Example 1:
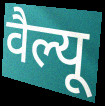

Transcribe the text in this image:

वैल्यू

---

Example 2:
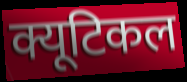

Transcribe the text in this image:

क्यूटिकल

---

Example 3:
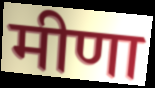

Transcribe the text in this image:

मीणा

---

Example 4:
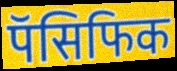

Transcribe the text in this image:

पॅसिफिक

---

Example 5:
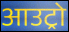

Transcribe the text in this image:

आउट्रो